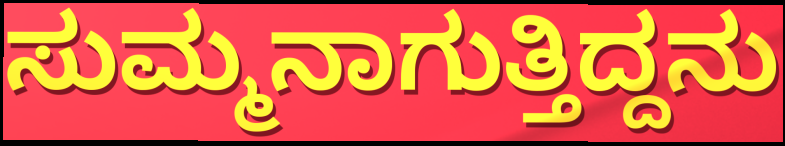
ಸುಮ್ಮನಾಗುತ್ತಿದ್ದನು